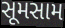
સૂમસામ